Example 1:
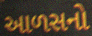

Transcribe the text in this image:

આળસનો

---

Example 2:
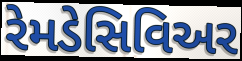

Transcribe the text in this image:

રેમડેસિવિઅર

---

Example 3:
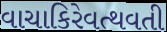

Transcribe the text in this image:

વાચાકિરેવત્થવતી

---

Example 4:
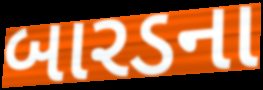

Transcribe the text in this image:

બારડના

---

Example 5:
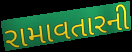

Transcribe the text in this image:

રામાવતારની